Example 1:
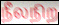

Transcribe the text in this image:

நீலநிற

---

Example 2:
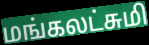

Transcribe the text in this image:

மங்கலட்சுமி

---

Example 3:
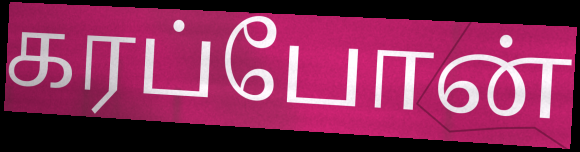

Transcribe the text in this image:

கரப்போன்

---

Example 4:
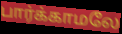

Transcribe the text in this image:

பார்க்காமலே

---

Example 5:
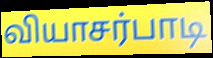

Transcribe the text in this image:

வியாசர்பாடி